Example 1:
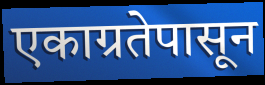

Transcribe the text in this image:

एकाग्रतेपासून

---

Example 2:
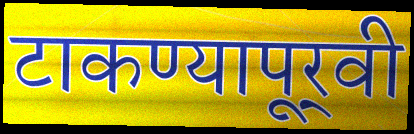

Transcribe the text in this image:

टाकण्यापूर्वी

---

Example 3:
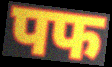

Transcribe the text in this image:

पफ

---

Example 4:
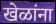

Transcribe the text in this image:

खेळांना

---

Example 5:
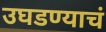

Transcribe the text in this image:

उघडण्याचं